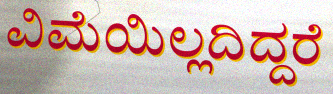
ವಿಮೆಯಿಲ್ಲದಿದ್ದರೆ